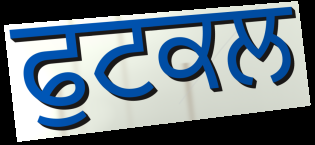
ਫੁਟਕਲ